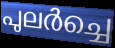
പുലർച്ചെ